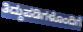
ತಿದ್ದುಪಡಿಗಳೊಂದಿಗೆ